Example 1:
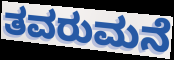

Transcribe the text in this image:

ತವರುಮನೆ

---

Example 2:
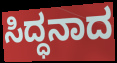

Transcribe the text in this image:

ಸಿದ್ಧನಾದ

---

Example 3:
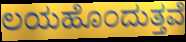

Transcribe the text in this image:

ಲಯಹೊಂದುತ್ತವೆ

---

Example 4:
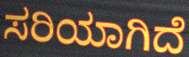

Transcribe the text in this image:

ಸರಿಯಾಗಿದೆ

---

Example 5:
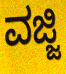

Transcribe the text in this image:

ವಜ್ಜಿ